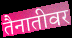
तैनातीवर